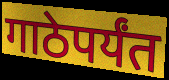
गाठेपर्यंत